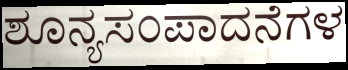
ಶೂನ್ಯಸಂಪಾದನೆಗಳ